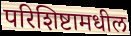
परिशिष्टामधील